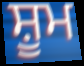
ਸ਼ੂਮ